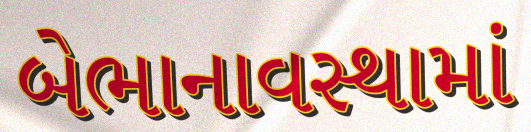
બેભાનાવસ્થામાં